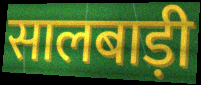
सालबाड़ी